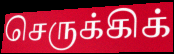
செருக்கிக்